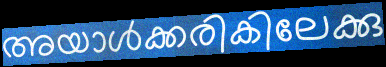
അയാൾക്കരികിലേക്കു